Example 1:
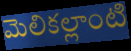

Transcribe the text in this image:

మెలికల్లాంటి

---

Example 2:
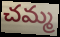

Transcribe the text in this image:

చమ్మ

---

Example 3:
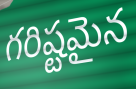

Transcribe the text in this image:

గరిష్టమైన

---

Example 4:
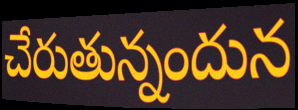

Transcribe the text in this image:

చేరుతున్నందున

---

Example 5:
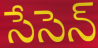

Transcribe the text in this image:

సేసెన్